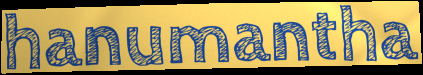
hanumantha